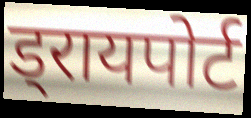
ड्रायपोर्ट